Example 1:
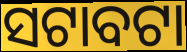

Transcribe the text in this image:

ସଟାବଟା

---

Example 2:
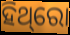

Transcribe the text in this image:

ହିଥ୍‌ରୋ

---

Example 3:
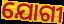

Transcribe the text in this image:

ଯୋଗୀ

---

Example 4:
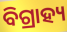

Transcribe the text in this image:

ବିଗ୍ରାହ୍ୟ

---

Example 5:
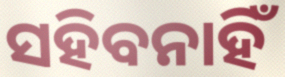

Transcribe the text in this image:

ସହିବନାହିଁ